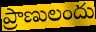
ప్రాణులందు